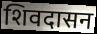
शिवदासन